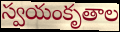
స్వయంకృతాల